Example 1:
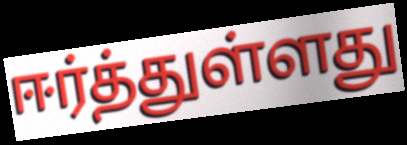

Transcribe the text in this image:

ஈர்த்துள்ளது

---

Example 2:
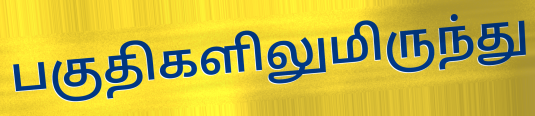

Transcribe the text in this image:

பகுதிகளிலுமிருந்து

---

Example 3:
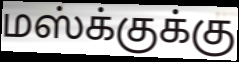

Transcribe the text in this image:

மஸ்க்குக்கு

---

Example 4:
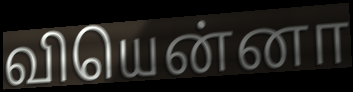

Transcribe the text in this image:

வியென்னா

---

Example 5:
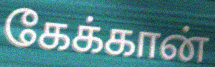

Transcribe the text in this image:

கேக்கான்